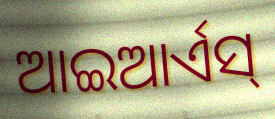
ଆଇଆର୍ଏସ୍